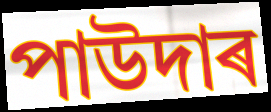
পাউদাৰ